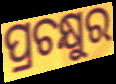
ପ୍ରଚକ୍ଷୁର